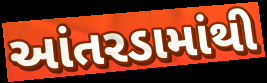
આંતરડામાંથી